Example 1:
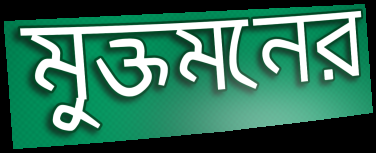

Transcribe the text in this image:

মুক্তমনের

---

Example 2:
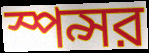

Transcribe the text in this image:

স্পন্সর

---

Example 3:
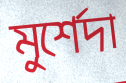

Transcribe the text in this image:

মুর্শেদা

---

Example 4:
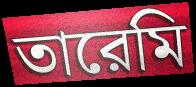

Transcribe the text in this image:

তারেমি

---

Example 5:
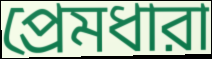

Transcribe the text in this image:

প্রেমধারা